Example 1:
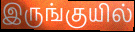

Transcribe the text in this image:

இருங்குயில்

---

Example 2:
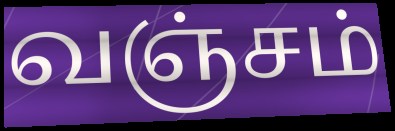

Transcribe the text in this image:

வஞ்சம்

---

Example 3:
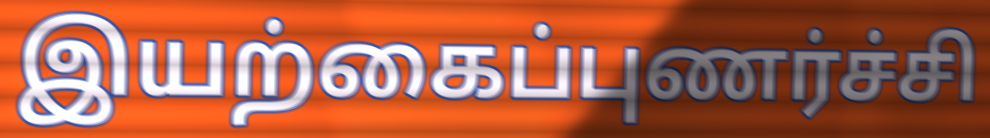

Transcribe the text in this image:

இயற்கைப்புணர்ச்சி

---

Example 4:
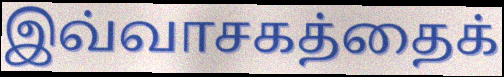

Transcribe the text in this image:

இவ்வாசகத்தைக்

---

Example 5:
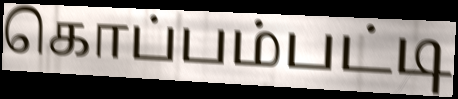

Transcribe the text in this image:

கொப்பம்பட்டி